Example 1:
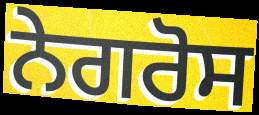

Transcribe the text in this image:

ਨੇਗਰੋਸ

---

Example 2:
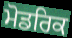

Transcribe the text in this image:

ਮੋਡਰਿਕ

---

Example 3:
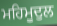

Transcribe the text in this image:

ਮਹਿਮੂਦੁਲ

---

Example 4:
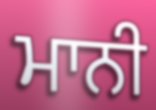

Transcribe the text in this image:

ਮਾਨੀ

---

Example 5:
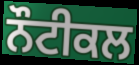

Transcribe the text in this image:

ਨੌਟੀਕਲ